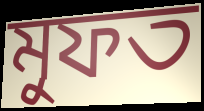
মুফত